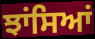
ਝਾਂਸਿਆਂ